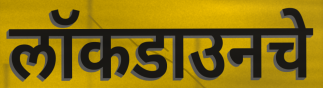
लॉकडाउनचे